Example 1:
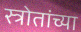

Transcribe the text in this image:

स्त्रोतांच्या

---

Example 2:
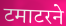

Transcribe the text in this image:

टमाटरने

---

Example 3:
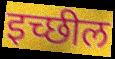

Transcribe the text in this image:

इच्छील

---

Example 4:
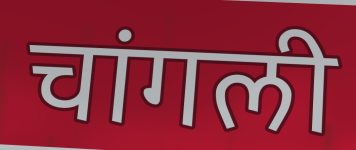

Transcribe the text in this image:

चांगली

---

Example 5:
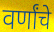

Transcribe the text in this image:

वर्णांचे